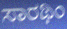
ಸಾರಥಿಂ